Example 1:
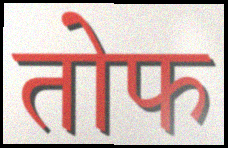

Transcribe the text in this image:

तोफ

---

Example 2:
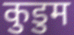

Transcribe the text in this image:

कुडुम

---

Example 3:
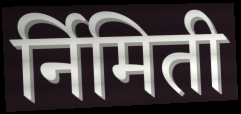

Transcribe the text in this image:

र्निमिती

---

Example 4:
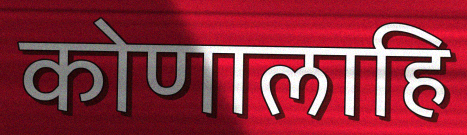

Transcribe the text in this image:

कोणालाहि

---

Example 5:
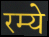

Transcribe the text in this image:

रम्ये